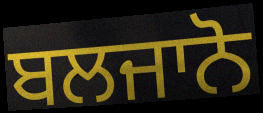
ਬਲਜਾਨੋ